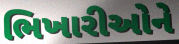
ભિખારીઓને